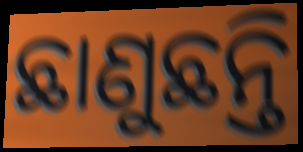
ଛାଣୁଛନ୍ତି